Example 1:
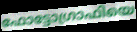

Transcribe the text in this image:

ഫോട്ടോഗ്രാഫിയെ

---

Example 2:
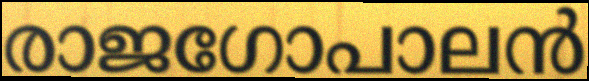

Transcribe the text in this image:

രാജഗോപാലൻ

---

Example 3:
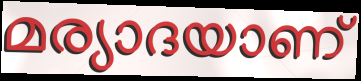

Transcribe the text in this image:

മര്യാദയാണ്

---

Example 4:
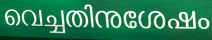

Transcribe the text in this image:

വെച്ചതിനുശേഷം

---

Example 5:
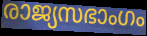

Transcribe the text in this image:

രാജ്യസഭാംഗം